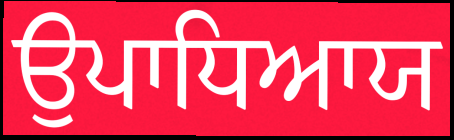
ਉਪਾਧਿਆਯ